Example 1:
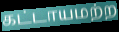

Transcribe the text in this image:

கட்டாயமற்ற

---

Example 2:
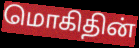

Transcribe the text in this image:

மொகிதின்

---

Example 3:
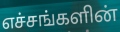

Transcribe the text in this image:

எச்சங்களின்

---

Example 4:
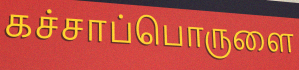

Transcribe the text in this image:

கச்சாப்பொருளை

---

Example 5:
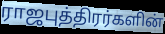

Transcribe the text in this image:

ராஜபுத்திரர்களின்